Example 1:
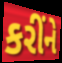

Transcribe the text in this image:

કરીંને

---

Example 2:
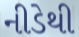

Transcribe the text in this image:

નીડેથી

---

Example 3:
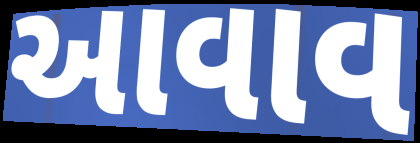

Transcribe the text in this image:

આવાવ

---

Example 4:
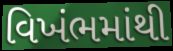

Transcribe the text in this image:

વિખંભમાંથી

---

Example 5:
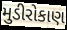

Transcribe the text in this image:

મુડીરોકાણ